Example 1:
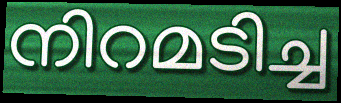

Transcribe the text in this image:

നിറമടിച്ച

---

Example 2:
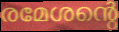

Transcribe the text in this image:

രമേശന്റെ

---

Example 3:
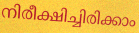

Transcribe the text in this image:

നിരീക്ഷിച്ചിരിക്കാം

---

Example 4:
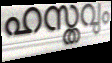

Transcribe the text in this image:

ഹസ്തവും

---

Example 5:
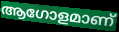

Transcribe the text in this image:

ആഗോളമാണ്